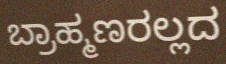
ಬ್ರಾಹ್ಮಣರಲ್ಲದ